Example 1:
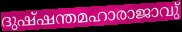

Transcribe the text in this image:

ദുഷ്ഷന്തമഹാരാജാവു്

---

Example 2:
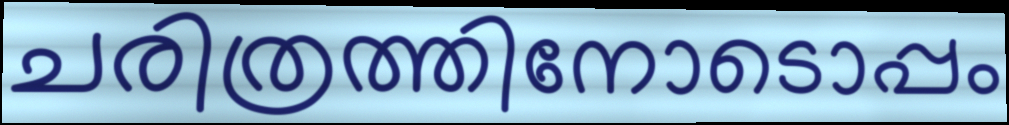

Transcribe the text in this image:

ചരിത്രത്തിനോടൊപ്പം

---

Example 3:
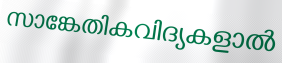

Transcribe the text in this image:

സാങ്കേതികവിദ്യകളാൽ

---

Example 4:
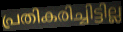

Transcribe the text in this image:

പ്രതികരിച്ചിട്ടില്ല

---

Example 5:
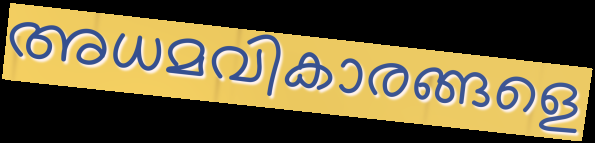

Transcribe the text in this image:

അധമവികാരങ്ങളെ